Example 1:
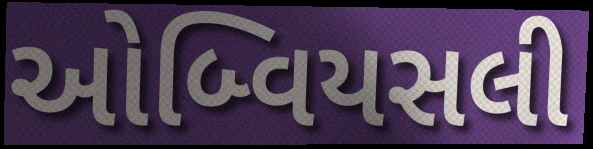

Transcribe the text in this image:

ઓબ્વિયસલી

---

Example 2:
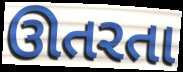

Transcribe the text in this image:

ઊતરતા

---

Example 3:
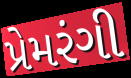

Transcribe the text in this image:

પ્રેમરંગી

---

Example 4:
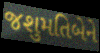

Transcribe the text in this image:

જશુમતિબેને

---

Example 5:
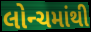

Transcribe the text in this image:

લોન્ચમાંથી